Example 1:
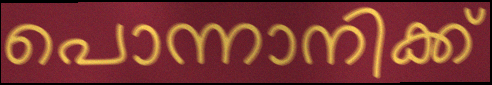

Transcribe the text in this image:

പൊന്നാനിക്ക്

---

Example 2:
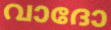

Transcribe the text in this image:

വാദോ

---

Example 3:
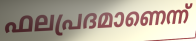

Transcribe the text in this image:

ഫലപ്രദമാണെന്ന്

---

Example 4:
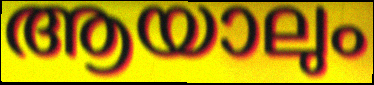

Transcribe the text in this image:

ആയാലും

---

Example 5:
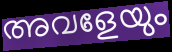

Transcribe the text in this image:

അവളേയും